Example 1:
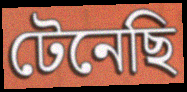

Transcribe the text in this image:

টেনেছি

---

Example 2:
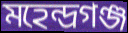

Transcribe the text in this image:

মহেন্দ্রগঞ্জ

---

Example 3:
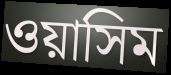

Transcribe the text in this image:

ওয়াসিম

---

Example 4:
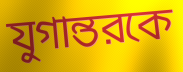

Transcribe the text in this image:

যুগান্তরকে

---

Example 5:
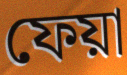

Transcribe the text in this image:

ফেয়া